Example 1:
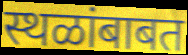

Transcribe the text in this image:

स्थळांबाबत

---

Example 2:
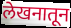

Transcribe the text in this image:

लेखनातून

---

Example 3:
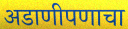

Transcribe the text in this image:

अडाणीपणाचा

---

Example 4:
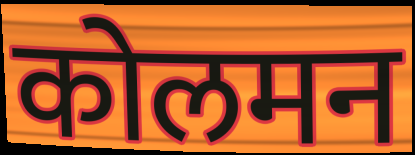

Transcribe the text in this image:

कोलमन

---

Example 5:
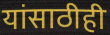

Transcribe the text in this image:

यांसाठीही